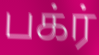
பக்ர்